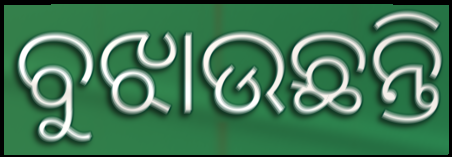
ବୁଝାଉଛନ୍ତି